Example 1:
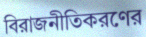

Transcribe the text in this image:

বিরাজনীতিকরণের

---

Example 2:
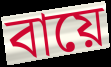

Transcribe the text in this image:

বায়ে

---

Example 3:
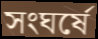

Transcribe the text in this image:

সংঘর্ষে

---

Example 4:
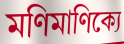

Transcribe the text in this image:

মণিমাণিক্যে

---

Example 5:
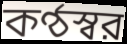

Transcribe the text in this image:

কণ্ঠস্বর